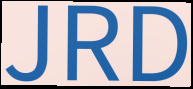
JRD